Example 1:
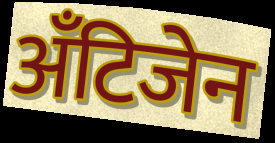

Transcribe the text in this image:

अँटिजेन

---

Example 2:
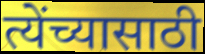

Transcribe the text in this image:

त्येंच्यासाठी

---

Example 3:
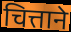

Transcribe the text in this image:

चित्ताने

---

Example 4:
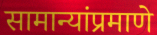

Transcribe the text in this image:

सामान्यांप्रमाणे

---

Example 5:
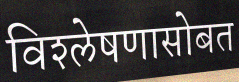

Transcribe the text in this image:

विश्लेषणासोबत